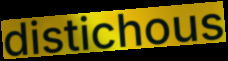
distichous